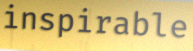
inspirable